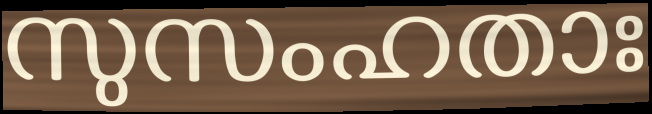
സുസംഹതാഃ